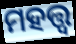
ମହତ୍ତ୍ବ